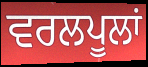
ਵਰਲਪੂਲਾਂ